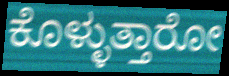
ಕೊಳ್ಳುತ್ತಾರೋ